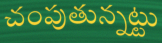
చంపుతున్నట్టు